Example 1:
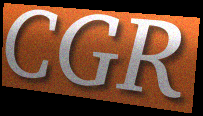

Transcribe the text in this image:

CGR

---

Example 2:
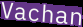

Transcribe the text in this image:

Vachan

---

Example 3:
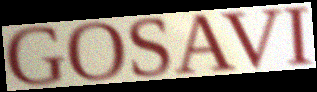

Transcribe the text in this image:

GOSAVI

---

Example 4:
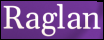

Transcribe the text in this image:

Raglan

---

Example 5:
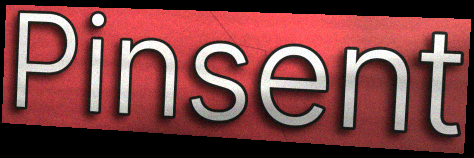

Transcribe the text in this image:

Pinsent